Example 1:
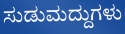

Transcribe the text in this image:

ಸುಡುಮದ್ದುಗಳು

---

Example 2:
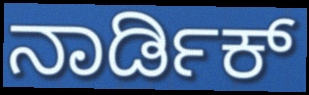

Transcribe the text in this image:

ನಾರ್ಡಿಕ್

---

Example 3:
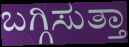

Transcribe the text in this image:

ಬಗ್ಗಿಸುತ್ತಾ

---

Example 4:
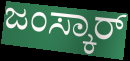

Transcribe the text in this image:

ಜಂಸ್ಕಾರ್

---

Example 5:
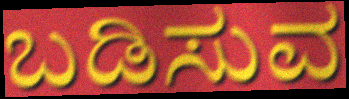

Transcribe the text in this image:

ಬಡಿಸುವ